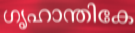
ഗൃഹാന്തികേ